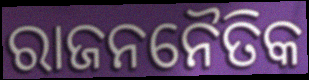
ରାଜନନୈତିକ